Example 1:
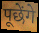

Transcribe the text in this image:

पूछेंगे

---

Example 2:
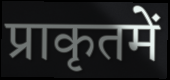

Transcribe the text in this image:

प्राकृतमें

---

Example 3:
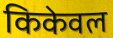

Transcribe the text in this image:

किकेवल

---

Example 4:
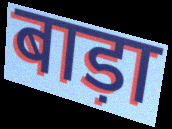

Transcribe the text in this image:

बाड़ा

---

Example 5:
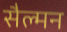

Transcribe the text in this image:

सैल्मन